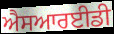
ਐਸਆਰਈਡੀ